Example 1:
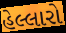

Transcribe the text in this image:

હેલ્લારો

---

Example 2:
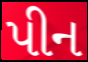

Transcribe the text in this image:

પીન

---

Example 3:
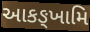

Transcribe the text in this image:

આકઙ્ખામિ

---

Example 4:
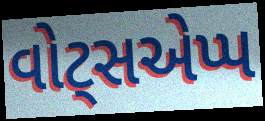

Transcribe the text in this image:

વોટ્સએપ્પ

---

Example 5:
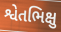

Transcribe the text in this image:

શ્વેતભિક્ષુ